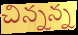
చిన్నన్న